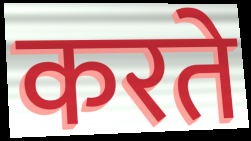
करते